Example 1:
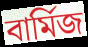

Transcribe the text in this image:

বার্মিজ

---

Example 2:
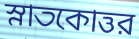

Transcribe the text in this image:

স্নাতকোত্তর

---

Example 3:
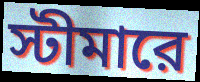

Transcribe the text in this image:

স্টীমারে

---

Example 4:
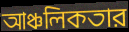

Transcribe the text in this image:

আঞ্চলিকতার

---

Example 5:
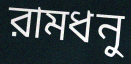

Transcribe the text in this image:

রামধনু